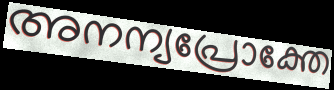
അനന്യപ്രോക്തേ